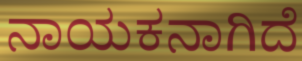
ನಾಯಕನಾಗಿದೆ